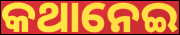
କଥାନେଇ